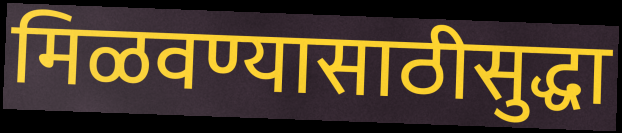
मिळवण्यासाठीसुद्धा